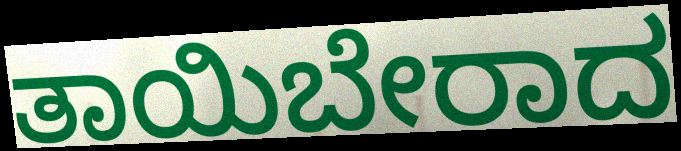
ತಾಯಿಬೇರಾದ